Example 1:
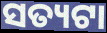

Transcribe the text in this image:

ସତ୍ୟଟା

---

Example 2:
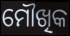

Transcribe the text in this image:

ମୌଖିକ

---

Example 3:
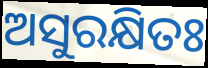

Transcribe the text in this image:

ଅସୁରକ୍ଷିତଃ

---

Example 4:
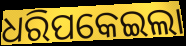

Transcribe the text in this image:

ଧରିପକେଇଲା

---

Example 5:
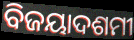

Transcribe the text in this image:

ବିଜୟାଦଶମୀ